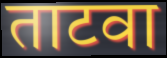
ताटवा